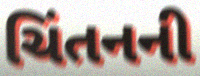
ચિંતનની